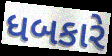
ધબકારે